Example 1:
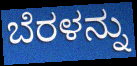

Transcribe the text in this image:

ಬೆರಳನ್ನು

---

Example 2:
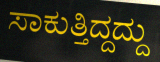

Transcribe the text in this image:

ಸಾಕುತ್ತಿದ್ದದ್ದು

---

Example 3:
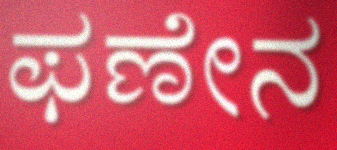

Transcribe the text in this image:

ಫಣೇನ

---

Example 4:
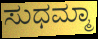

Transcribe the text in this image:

ಸುಧಮ್ಮಾ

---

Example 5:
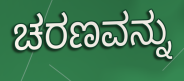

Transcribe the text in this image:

ಚರಣವನ್ನು